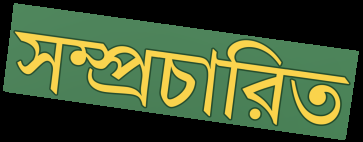
সম্প্রচারিত